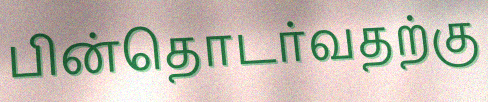
பின்தொடர்வதற்கு